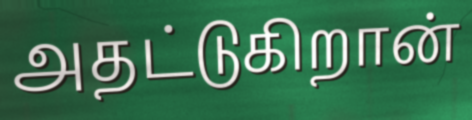
அதட்டுகிறான்